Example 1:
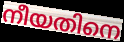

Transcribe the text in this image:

നീയതിനെ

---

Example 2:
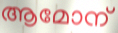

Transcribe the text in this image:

ആമോന്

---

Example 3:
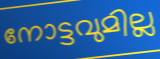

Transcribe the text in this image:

നോട്ടവുമില്ല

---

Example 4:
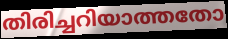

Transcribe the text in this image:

തിരിച്ചറിയാത്തതോ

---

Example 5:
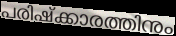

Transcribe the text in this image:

പരിഷ്ക്കാരത്തിനും